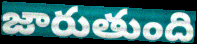
జారుతుంది